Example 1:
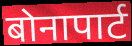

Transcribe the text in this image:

बोनापार्ट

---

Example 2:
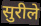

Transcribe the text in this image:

सुरीले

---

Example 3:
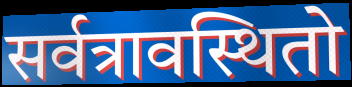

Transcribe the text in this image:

सर्वत्रावस्थितो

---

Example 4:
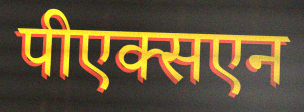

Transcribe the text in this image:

पीएक्सएन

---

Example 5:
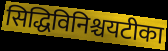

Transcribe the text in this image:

सिद्धिविनिश्चयटीका